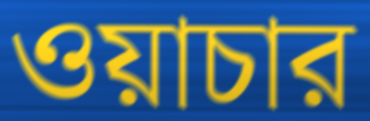
ওয়াচার